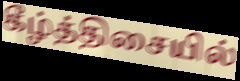
கீழ்த்திசையில்